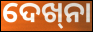
ଦେଖ୍‌ନା